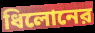
ধিলোনের